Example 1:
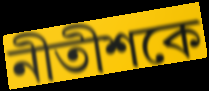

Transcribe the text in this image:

নীতীশকে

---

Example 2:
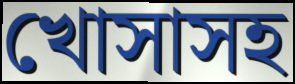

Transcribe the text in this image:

খোসাসহ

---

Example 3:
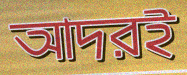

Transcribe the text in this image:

আদরই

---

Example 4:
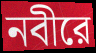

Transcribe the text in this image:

নবীরে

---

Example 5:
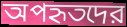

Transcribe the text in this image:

অপহৃতদের